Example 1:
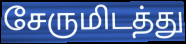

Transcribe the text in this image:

சேருமிடத்து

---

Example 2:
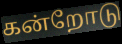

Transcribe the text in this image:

கன்றோடு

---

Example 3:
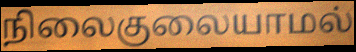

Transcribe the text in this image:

நிலைகுலையாமல்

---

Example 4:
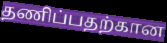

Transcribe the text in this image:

தணிப்பதற்கான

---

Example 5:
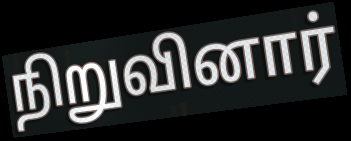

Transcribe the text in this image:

நிறுவினார்